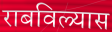
राबविल्यास